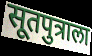
सूतपुत्राला